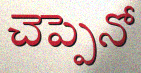
చెప్పెనో